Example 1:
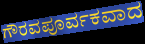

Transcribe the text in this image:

ಗೌರವಪೂರ್ವಕವಾದ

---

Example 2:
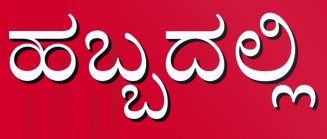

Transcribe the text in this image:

ಹಬ್ಬದಲ್ಲಿ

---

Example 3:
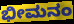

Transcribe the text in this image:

ಭೀಮನಂ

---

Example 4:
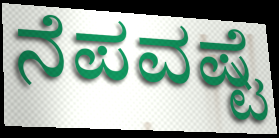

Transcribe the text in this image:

ನೆಪವಷ್ಟೆ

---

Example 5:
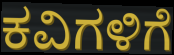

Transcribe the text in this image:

ಕವಿಗಳಿಗೆ